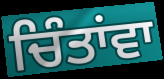
ਚਿੰਤਾਂਵਾ